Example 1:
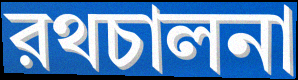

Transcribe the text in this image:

রথচালনা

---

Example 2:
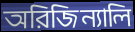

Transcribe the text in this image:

অরিজিন্যালি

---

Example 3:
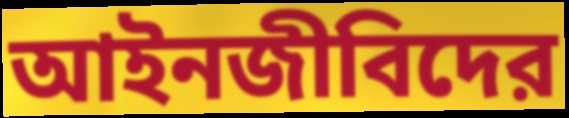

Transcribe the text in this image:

আইনজীবিদের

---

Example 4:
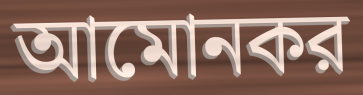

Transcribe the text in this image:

আমোনকর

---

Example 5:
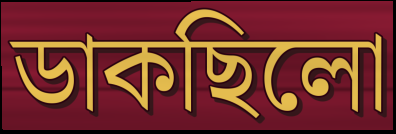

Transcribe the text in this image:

ডাকছিলো